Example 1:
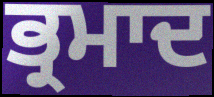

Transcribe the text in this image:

ਭ੍ਰਮਾਦ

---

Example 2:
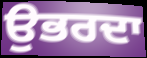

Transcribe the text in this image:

ਉਭਰਦਾ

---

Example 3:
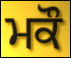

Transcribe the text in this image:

ਮਕੌ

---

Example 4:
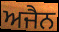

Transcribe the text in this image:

ਅਜੈਨ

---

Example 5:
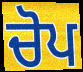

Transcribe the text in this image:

ਚੋਪ